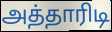
அத்தாரிடி